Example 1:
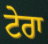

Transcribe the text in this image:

ਟੇਰਾ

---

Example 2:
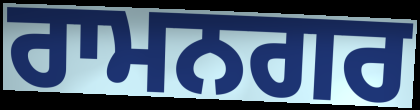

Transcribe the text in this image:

ਰਾਮਨਗਰ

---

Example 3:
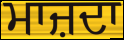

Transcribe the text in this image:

ਮਾਜ਼ਦਾ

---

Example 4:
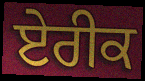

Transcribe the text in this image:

ਏਰੀਕ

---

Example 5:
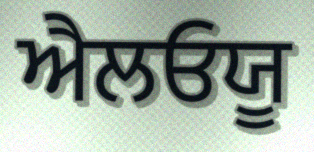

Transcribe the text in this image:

ਐਲਓਯੂ